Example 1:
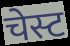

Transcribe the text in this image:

चेस्‍ट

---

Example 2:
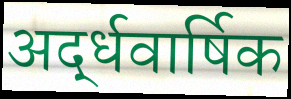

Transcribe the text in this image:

अर्द्धवार्षिक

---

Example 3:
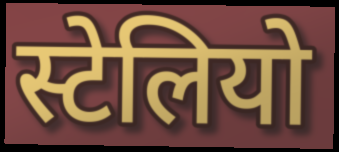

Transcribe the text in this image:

स्टेलियो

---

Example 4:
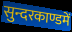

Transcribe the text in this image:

सुन्दरकाण्डमें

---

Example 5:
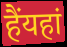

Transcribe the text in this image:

हैंयहां